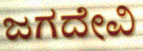
ಜಗದೇವಿ